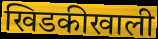
खिडकीखाली